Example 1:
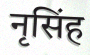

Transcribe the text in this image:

नृसिंह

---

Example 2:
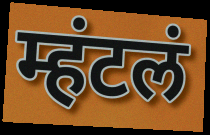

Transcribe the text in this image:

म्हंटलं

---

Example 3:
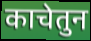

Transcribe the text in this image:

काचेतुन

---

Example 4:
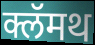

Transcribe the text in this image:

क्लॅमथ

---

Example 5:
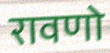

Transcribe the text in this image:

रावणो